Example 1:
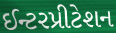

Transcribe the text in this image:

ઈન્ટરપ્રીટેશન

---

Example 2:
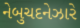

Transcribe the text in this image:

નેબુચદનેઝારે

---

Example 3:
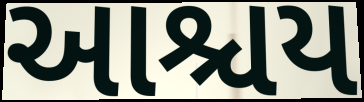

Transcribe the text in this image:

આશ્ચય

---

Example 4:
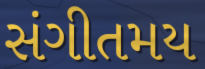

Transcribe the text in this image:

સંગીતમય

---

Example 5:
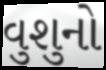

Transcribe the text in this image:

વુશુનો